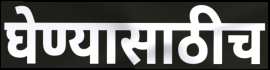
घेण्यासाठीच